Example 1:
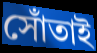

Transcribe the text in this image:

সোঁতাই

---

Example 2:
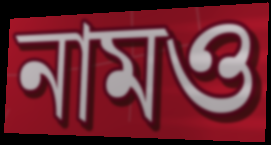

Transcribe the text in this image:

নামও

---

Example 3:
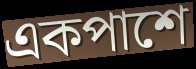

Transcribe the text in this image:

একপাশে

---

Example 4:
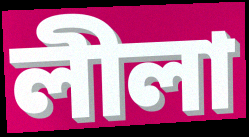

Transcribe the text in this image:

লীলা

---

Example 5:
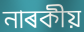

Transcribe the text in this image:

নাৰকীয়